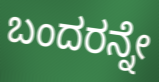
ಬಂದರನ್ನೇ